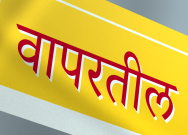
वापरतील